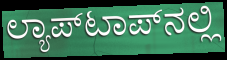
ಲ್ಯಾಪ್‌ಟಾಪ್‌ನಲ್ಲಿ